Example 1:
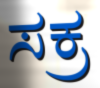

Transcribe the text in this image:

ಸಕ್ರ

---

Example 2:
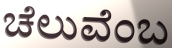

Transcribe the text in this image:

ಚೆಲುವೆಂಬ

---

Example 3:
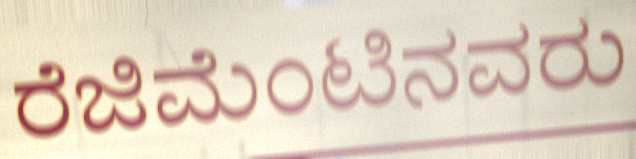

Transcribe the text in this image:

ರೆಜಿಮೆಂಟಿನವರು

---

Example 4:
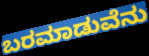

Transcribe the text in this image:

ಬರಮಾಡುವೆನು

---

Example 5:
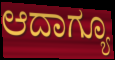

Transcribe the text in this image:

ಆದಾಗ್ಯೂ